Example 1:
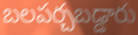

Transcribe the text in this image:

బలపర్చబడ్డారు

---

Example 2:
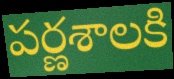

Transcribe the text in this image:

పర్ణశాలకి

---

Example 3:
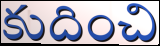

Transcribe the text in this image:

కుదించి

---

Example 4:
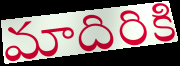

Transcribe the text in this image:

మాదిరికి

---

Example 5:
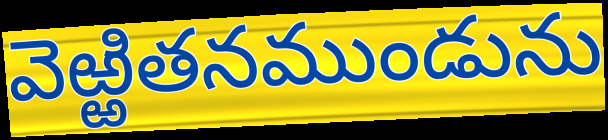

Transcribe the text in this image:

వెఱ్ఱితనముండును